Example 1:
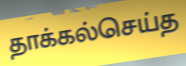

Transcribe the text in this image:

தாக்கல்செய்த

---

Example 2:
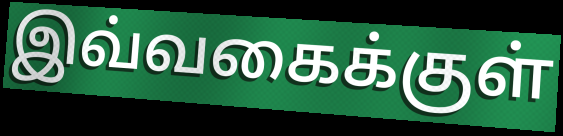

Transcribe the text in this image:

இவ்வகைக்குள்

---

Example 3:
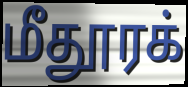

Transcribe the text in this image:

மீதூரக்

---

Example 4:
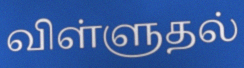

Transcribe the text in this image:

விள்ளுதல்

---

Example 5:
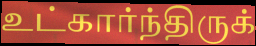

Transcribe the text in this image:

உட்கார்ந்திருக்